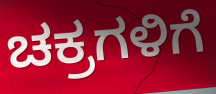
ಚಕ್ರಗಳಿಗೆ